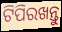
ଟିପିରଖନ୍ତୁ